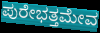
ಪುರೇಭತ್ತಮೇವ